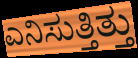
ಎನಿಸುತ್ತಿತ್ತು